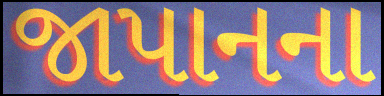
જાપાનના